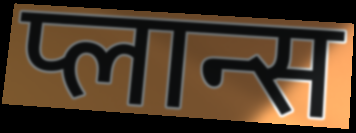
प्लान्स